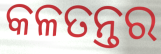
କଳତନ୍ତର